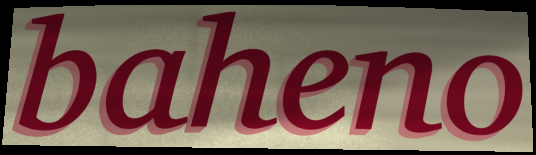
baheno